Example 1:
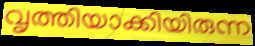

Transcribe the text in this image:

വൃത്തിയാക്കിയിരുന്ന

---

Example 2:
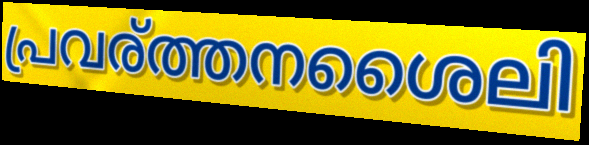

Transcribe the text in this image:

പ്രവര്ത്തനശൈലി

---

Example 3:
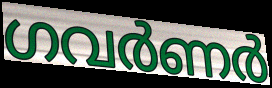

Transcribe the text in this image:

ഗവർണർ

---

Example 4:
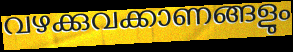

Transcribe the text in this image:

വഴക്കുവക്കാണങ്ങളും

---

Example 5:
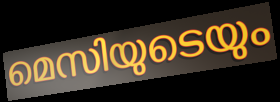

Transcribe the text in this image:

മെസിയുടെയും